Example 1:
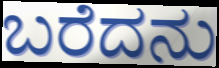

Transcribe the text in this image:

ಬರೆದನು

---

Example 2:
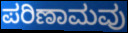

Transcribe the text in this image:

ಪರಿಣಾಮವು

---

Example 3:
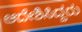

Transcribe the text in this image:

ಆದೇಶಿಸಿದ್ದರು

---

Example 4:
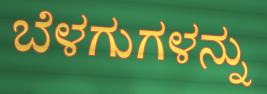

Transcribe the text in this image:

ಬೆಳಗುಗಳನ್ನು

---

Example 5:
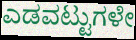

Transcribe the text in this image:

ಎಡವಟ್ಟುಗಳೇ